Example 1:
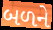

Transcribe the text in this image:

બળને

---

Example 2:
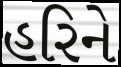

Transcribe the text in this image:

હરિને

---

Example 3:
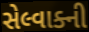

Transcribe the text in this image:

સેલ્વાક્ની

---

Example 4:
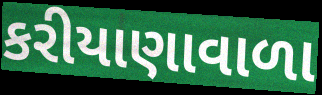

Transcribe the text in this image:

કરીયાણાવાળા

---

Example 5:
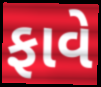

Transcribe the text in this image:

ફાવે